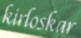
kirloskar